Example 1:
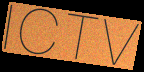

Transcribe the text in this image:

ICTV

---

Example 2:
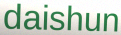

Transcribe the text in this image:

daishun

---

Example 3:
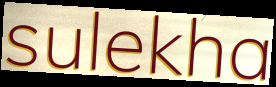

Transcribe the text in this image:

sulekha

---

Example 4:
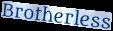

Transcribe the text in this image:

Brotherless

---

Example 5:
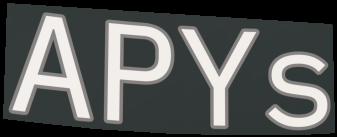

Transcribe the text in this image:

APYs